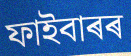
ফাইবাৰৰ